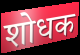
शोधक